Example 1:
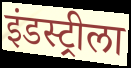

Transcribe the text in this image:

इंडस्ट्रीला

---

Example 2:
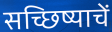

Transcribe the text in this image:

सच्छिष्याचें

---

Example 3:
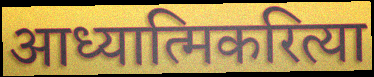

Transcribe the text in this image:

आध्यात्मिकरित्या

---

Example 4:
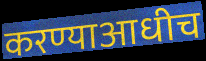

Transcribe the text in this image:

करण्याआधीच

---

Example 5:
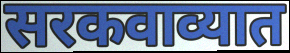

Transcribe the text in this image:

सरकवाव्यात